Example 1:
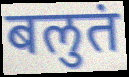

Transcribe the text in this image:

बलुतं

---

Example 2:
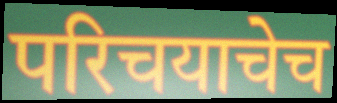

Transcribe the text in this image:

परिचयाचेच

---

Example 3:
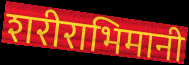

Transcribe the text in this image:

शरीराभिमानी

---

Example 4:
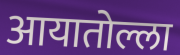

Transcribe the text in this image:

आयातोल्ला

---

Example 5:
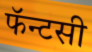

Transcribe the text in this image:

फॅन्टसी